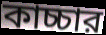
কাচ্চার